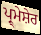
ਪ੍ਰ੍ਮੇਸ਼ੇਰ